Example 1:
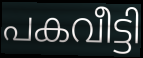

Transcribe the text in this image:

പകവീട്ടി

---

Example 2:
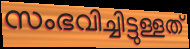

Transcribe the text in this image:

സംഭവിച്ചിട്ടുള്ളത്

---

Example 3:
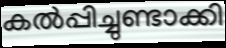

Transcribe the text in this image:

കൽപ്പിച്ചുണ്ടാക്കി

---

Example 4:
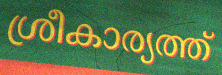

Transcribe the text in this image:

ശ്രീകാര്യത്ത്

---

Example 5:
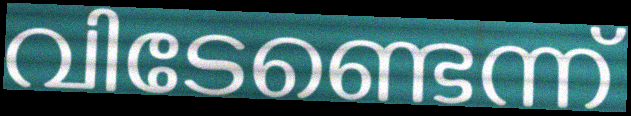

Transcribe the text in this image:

വിടേണ്ടെന്ന്